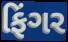
ફિંગર